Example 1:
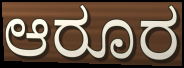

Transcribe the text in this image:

ಆರೂರ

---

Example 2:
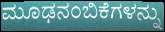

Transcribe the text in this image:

ಮೂಢನಂಬಿಕೆಗಳನ್ನು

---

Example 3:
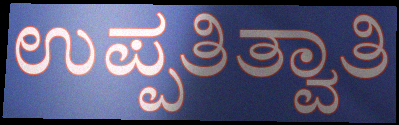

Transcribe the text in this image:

ಉಪ್ಪತಿತ್ವಾತಿ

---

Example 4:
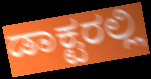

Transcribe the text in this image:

ಡಾಕ್ಟರಲ್ಲಿ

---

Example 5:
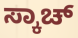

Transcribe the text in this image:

ಸ್ಕಾಚ್